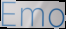
Emo